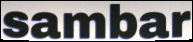
sambar